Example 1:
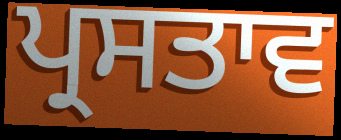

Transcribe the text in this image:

ਪ੍ਰਸਤਾਵ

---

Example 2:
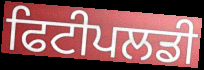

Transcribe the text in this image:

ਫਿਟੀਪਲਡੀ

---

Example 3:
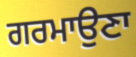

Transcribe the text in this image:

ਗਰਮਾਉਣਾ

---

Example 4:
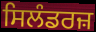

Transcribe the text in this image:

ਸਿਲੰਡਰਜ਼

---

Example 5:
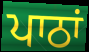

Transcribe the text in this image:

ਪਾਠਾਂ